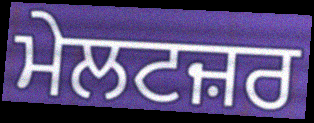
ਮੇਲਟਜ਼ਰ